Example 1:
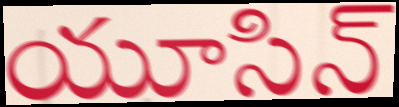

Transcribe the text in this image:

యూసిన్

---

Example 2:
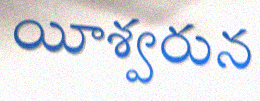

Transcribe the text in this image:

యీశ్వరున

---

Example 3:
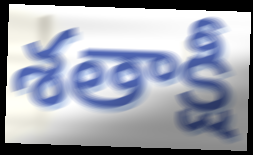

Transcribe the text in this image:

శతాక్షీ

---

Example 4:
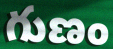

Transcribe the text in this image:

గుణం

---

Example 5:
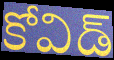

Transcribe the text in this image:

కోవిడ్